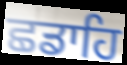
ਛਡਾਹਿ